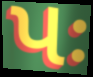
પઃ